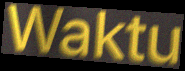
Waktu